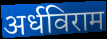
अर्धविराम